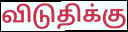
விடுதிக்கு